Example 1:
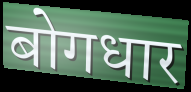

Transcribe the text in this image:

बोगधार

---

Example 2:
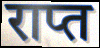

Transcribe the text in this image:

राप्त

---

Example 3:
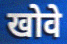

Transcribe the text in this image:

खोवे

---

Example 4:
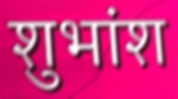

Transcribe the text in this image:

शुभांश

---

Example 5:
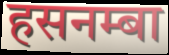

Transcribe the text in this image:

हसनम्बा